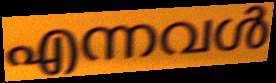
എന്നവൾ